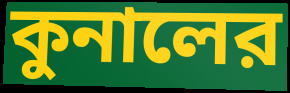
কুনালের